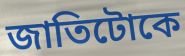
জাতিটোকে